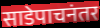
साडेपाचनंतर